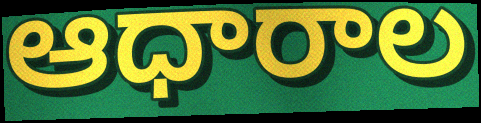
ఆధారాల